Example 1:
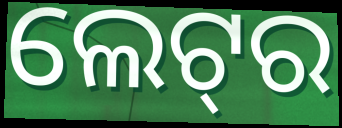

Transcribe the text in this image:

ଲେଟ୍‌ର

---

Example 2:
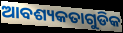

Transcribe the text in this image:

ଆବଶ୍ୟକତାଗୁଡିକ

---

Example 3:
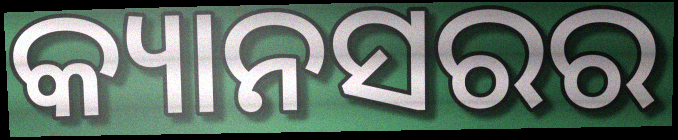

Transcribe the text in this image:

କ୍ୟାନସରର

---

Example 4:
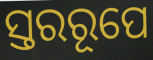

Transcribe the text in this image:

ସ୍ତରରୂପେ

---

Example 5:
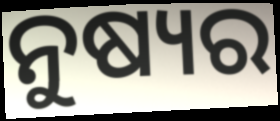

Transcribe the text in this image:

ନୁଷ୍ୟର